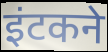
इंटकने